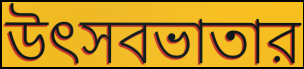
উৎসবভাতার